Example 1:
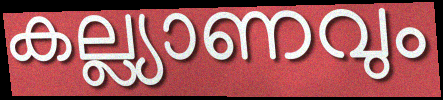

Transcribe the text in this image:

കല്ല്യാണവും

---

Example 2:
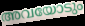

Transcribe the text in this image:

അവയോടും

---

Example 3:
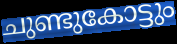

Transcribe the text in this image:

ചുണ്ടുകോട്ടും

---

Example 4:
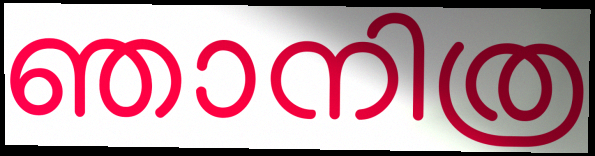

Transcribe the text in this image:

ഞാനിത്ര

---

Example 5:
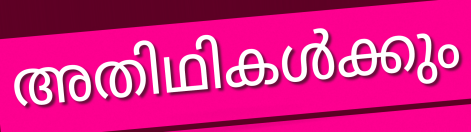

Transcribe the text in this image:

അതിഥികൾക്കും